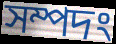
সম্পদং